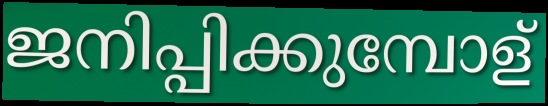
ജനിപ്പിക്കുമ്പോള്